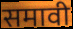
समावी